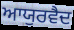
ਆਯੁਰਵੈਦ